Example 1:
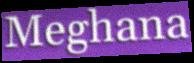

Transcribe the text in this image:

Meghana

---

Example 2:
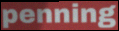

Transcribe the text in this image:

penning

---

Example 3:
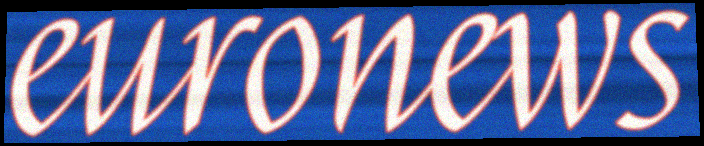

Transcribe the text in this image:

euronews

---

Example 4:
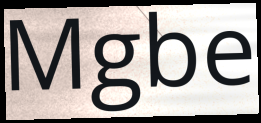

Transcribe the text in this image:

Mgbe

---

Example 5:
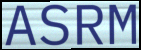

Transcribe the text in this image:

ASRM